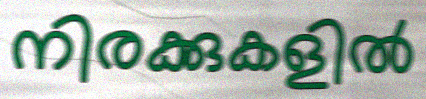
നിരക്കുകളിൽ